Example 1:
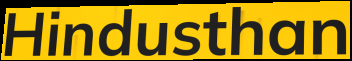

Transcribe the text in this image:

Hindusthan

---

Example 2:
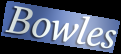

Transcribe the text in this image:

Bowles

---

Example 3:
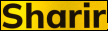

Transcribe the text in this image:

Sharir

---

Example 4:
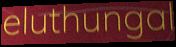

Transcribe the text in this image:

eluthungal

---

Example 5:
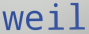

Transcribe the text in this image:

weil